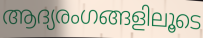
ആദ്യരംഗങ്ങളിലൂടെ